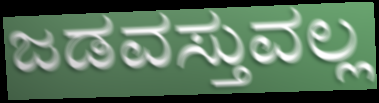
ಜಡವಸ್ತುವಲ್ಲ